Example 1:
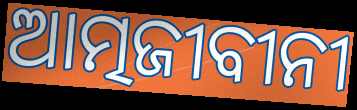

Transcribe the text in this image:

ଆତ୍ମଜୀବୀନୀ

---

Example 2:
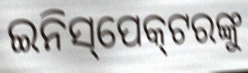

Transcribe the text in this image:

ଇନିସ୍‌ପେକ୍‍ଟରଙ୍କୁ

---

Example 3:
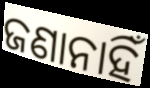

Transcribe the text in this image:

ଜଣାନାହିଁ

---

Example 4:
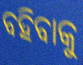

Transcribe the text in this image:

ବହିବାକୁ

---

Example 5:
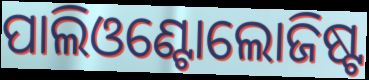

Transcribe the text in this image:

ପାଲିଓଣ୍ଟୋଲୋଜିଷ୍ଟ